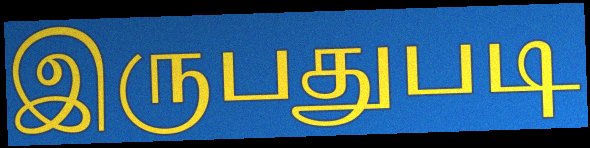
இருபதுபடி